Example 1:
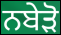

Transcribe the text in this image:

ਨਬੇੜੋ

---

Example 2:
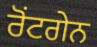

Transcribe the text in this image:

ਰੋਂਟਗੇਨ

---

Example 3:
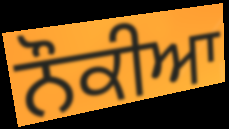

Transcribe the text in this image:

ਨੌਕੀਆ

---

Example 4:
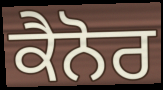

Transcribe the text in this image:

ਕੈਨੋਰ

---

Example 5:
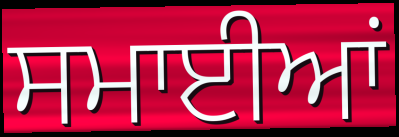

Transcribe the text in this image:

ਸਮਾਈਆਂ